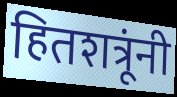
हितशत्रूंनी